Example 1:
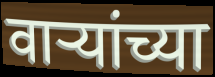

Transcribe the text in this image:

वाऱ्यांच्या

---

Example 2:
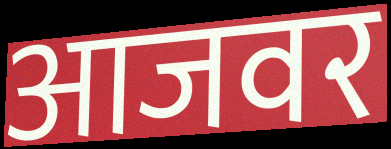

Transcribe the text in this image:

आजवर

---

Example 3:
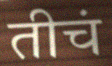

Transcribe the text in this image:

तीचं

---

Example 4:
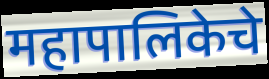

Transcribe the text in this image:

महापालिकेचे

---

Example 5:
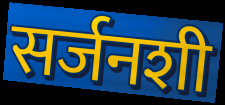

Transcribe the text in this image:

सर्जनशी